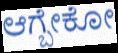
ಆಗ್ಬೇಕೋ